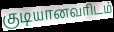
குடியானவரிடம்